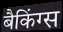
बैकिंग्स